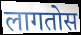
लागतोस